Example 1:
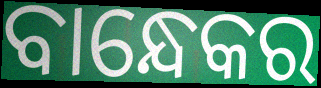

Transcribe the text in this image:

ବାନ୍ଧେକର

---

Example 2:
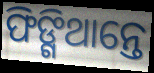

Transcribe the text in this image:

ଫିଙ୍ଗିଥାନ୍ତେ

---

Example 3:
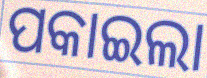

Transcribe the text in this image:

ପକାଇଲା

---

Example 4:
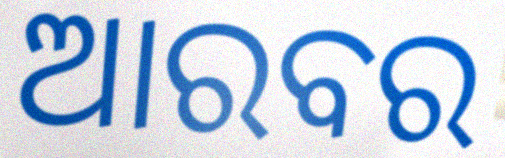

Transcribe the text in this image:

ଆରବର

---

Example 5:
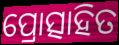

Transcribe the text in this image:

ପ୍ରୋତ୍ସାହିତ